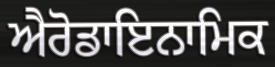
ਐਰੋਡਾਇਨਾਮਿਕ